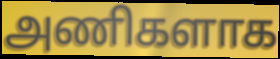
அணிகளாக